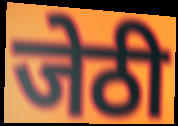
जेठी